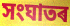
সংঘাতৰ